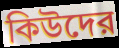
কিউদের